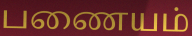
பணையம்